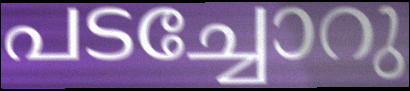
പടച്ചോറു